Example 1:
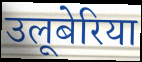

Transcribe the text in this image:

उलूबेरिया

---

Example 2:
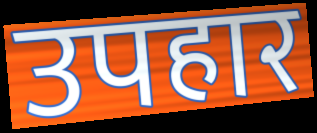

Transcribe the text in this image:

उपहार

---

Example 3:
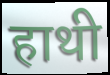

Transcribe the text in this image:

हाथी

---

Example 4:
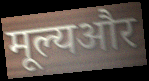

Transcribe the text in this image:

मूल्यऔर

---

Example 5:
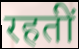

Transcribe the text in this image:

रहतीं